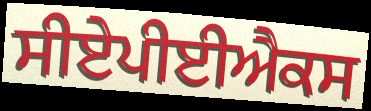
ਸੀਏਪੀਈਐਕਸ